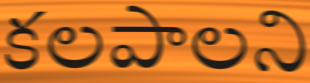
కలపాలని